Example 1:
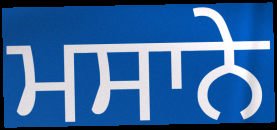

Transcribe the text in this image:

ਮਸਾਨੇ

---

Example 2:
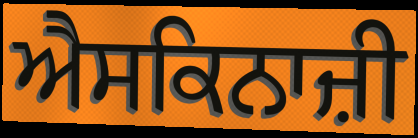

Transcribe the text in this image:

ਐਸਕਿਨਾਜ਼ੀ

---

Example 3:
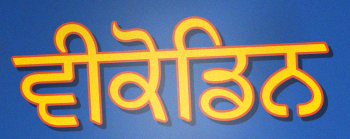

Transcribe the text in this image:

ਵੀਕੋਡਿਨ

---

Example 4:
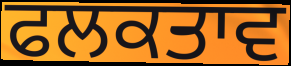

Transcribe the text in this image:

ਫਲਕਤਾਵ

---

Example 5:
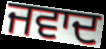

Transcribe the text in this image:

ਜਵਾਦ